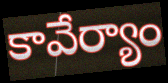
కావేర్యాం